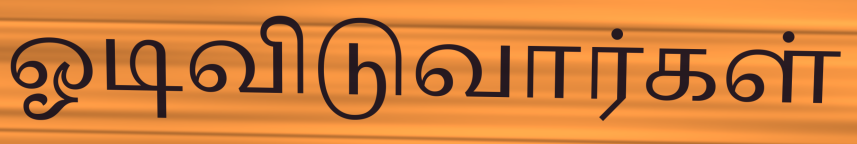
ஓடிவிடுவார்கள்